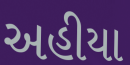
અહીયા